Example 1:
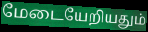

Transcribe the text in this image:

மேடையேறியதும்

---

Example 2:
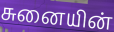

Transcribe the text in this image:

சுனையின்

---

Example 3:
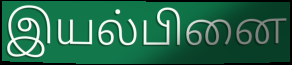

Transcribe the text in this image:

இயல்பினை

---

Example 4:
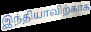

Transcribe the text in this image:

இந்தியாவிற்காக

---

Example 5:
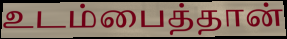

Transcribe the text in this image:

உடம்பைத்தான்